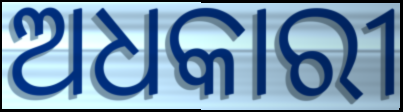
ଅଧକାରୀ